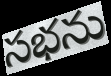
సభను